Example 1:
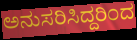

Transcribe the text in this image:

ಅನುಸರಿಸಿದ್ದರಿಂದ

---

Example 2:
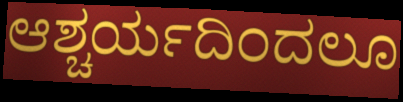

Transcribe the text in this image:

ಆಶ್ಚರ್ಯದಿಂದಲೂ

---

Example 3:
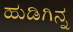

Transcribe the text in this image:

ಹುಡಿಗಿನ್ನ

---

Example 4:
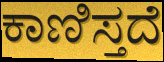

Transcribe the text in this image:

ಕಾಣಿಸ್ತದೆ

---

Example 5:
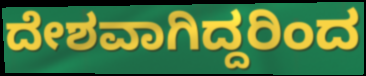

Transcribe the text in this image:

ದೇಶವಾಗಿದ್ದರಿಂದ